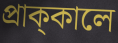
প্রাক্‌কালে